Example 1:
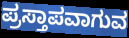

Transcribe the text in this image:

ಪ್ರಸ್ತಾಪವಾಗುವ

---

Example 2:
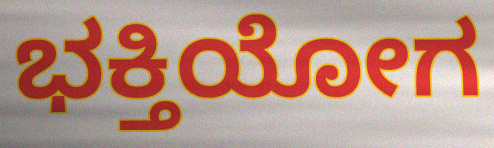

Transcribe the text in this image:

ಭಕ್ತಿಯೋಗ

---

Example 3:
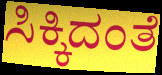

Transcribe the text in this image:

ಸಿಕ್ಕಿದಂತೆ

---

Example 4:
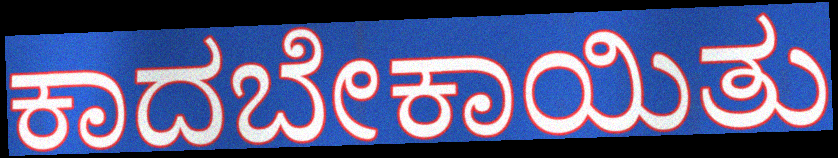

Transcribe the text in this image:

ಕಾದಬೇಕಾಯಿತು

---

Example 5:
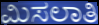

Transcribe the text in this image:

ಮಿಸಲಾತಿ